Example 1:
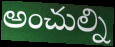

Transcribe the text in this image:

అంచుల్ని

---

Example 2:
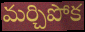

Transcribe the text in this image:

మర్చిపోక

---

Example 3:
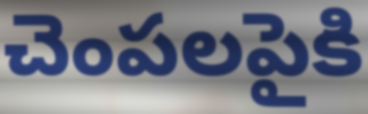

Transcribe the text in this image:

చెంపలపైకి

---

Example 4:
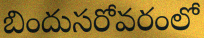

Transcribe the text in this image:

బిందుసరోవరంలో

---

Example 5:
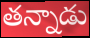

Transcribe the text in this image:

తన్నాడు